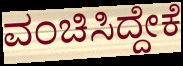
ವಂಚಿಸಿದ್ದೇಕೆ